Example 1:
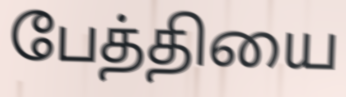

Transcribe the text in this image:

பேத்தியை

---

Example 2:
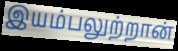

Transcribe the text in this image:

இயம்பலுற்றான்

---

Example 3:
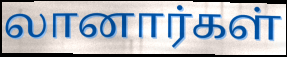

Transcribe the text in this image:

லானார்கள்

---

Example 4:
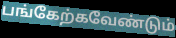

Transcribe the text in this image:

பங்கேற்கவேண்டும்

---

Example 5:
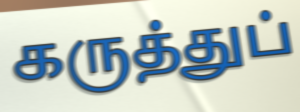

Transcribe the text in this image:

கருத்துப்